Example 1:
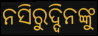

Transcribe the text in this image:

ନସିରୁଦ୍ଦିନଙ୍କୁ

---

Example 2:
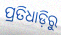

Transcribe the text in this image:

ପ୍ରତିଧାଡ଼ିରୁ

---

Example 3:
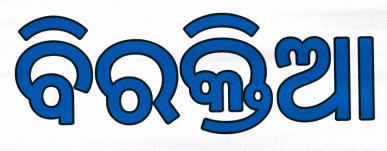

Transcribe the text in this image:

ବିରକ୍ତିଆ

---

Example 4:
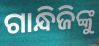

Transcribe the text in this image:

ଗାନ୍ଧିଜିଙ୍କୁ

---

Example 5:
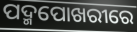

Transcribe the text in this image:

ପଦ୍ମପୋଖରୀରେ